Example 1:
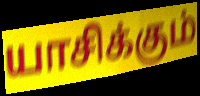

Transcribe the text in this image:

யாசிக்கும்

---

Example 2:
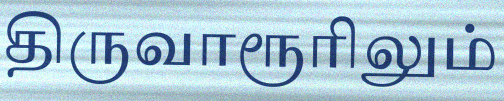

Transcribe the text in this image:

திருவாரூரிலும்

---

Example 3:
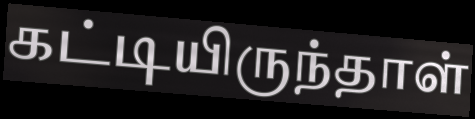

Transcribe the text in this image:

கட்டியிருந்தாள்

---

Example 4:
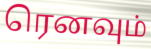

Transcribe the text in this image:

ரெனவும்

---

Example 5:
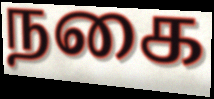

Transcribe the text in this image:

நகை